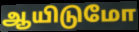
ஆயிடுமோ